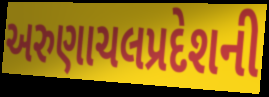
અરુણાચલપ્રદેશની